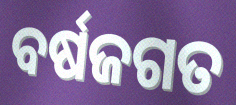
ବର୍ଷଜଗତ